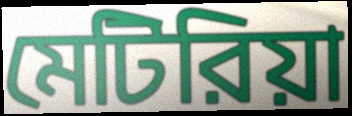
মেটিরিয়া